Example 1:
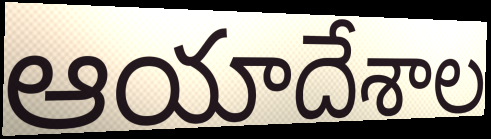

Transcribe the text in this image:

ఆయాదేశాల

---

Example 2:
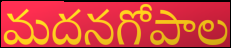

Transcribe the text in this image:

మదనగోపాల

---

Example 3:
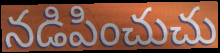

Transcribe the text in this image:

నడిపించుచు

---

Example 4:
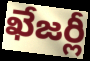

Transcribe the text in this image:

ఖేజర్లీ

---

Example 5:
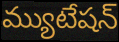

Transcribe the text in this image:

మ్యుటేషన్